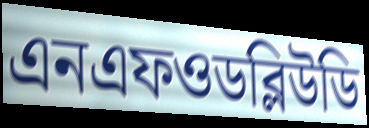
এনএফওডব্লিউডি